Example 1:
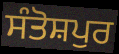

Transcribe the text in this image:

ਸੰਤੋਸ਼ਪੁਰ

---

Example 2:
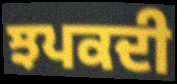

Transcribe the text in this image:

ਝਪਕਦੀ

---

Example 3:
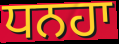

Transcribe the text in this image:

ਧਨਹਾ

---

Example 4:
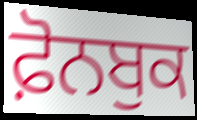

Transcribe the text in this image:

ਫ਼ੋਨਬੁਕ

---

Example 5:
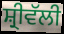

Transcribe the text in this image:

ਸ਼੍ਰੀਵੱਲੀ